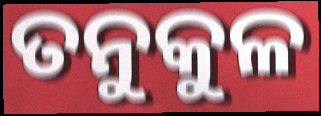
ତନୁକୁଳ